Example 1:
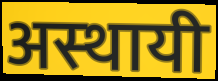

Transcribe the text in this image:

अस्थायी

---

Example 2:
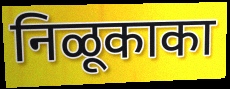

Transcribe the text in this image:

निळूकाका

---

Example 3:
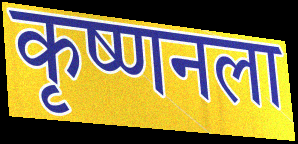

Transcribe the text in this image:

कृष्णनला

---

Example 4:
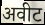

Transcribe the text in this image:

अवीट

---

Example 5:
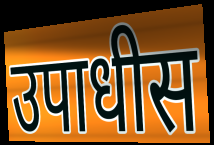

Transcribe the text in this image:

उपाधीस